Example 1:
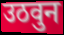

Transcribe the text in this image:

उठवुन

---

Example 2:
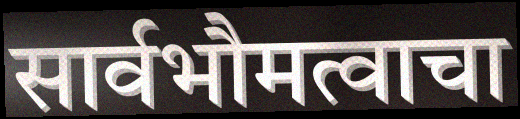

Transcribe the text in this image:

सार्वभौमत्वाचा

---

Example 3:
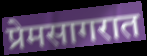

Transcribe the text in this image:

प्रेमसागरात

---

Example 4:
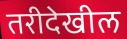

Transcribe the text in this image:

तरीदेखील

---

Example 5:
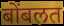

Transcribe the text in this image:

बोंबलत